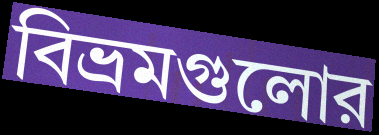
বিভ্রমগুলোর